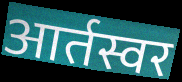
आर्तस्वर